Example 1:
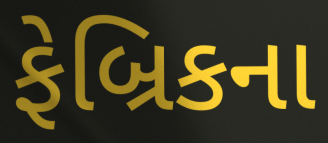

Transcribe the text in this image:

ફેબ્રિકના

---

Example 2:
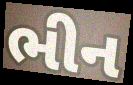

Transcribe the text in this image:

ભીન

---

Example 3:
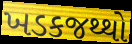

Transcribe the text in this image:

ખડકજથ્થો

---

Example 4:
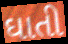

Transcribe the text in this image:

ઘાતી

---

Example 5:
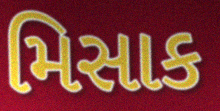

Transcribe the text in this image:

મિસાક